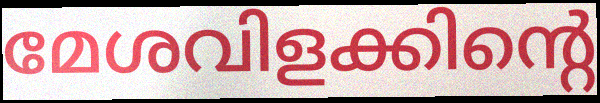
മേശവിളക്കിന്റെ